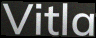
Vitla